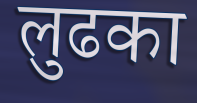
लुढका